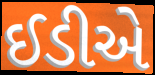
ઈડીએ